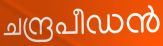
ചന്ദ്രപീഡൻ